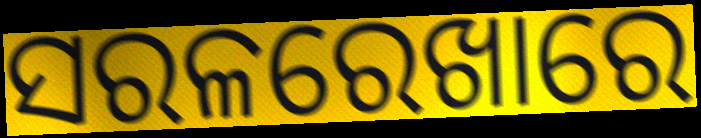
ସରଳରେଖାରେ